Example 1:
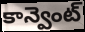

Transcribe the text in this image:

కాన్వెంట్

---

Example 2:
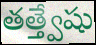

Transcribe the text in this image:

తత్త్వేషు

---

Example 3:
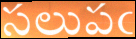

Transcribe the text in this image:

సలుపఁ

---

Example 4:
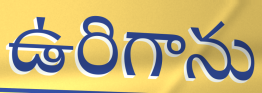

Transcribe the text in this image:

ఉరిగాను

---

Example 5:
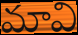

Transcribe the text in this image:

మావి